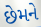
છેમને